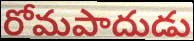
రోమపాదుడు